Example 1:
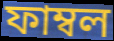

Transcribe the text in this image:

ফাম্বল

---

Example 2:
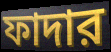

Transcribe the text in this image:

ফাদার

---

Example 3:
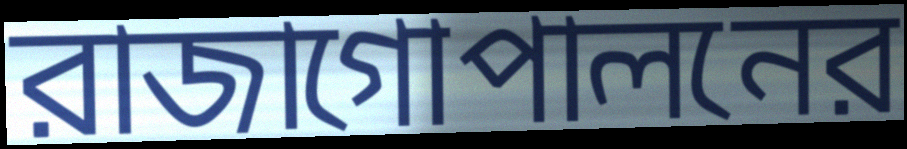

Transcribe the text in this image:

রাজাগোপালনের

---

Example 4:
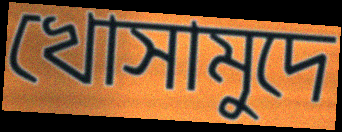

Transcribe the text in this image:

খোসামুদে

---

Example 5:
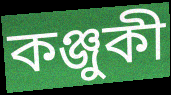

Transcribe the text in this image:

কঞ্জুকী